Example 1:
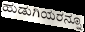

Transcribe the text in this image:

ಹುಡುಗಿಯರನ್ನೂ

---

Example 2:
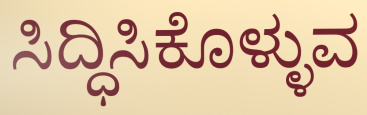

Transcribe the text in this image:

ಸಿದ್ಧಿಸಿಕೊಳ್ಳುವ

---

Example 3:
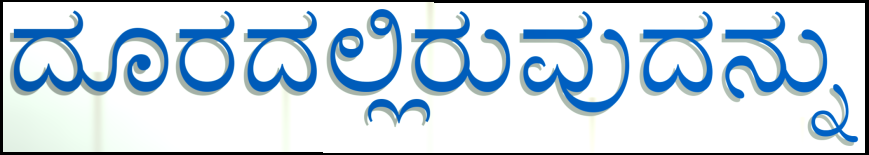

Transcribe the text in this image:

ದೂರದಲ್ಲಿರುವುದನ್ನು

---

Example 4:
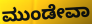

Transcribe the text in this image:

ಮುಂಡೇವಾ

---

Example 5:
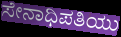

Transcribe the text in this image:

ಸೇನಾಧಿಪತಿಯು